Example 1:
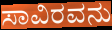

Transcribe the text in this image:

ಸಾವಿರವನು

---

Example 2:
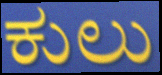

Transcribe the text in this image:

ಕುಲು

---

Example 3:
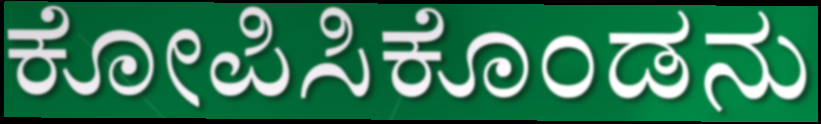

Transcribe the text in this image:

ಕೋಪಿಸಿಕೊಂಡನು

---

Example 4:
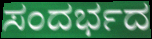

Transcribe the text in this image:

ಸಂದರ್ಭದ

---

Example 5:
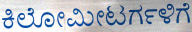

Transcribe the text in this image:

ಕಿಲೋಮೀಟರ್ಗಳಿಗೆ